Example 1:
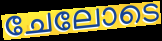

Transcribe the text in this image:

ചേലോടെ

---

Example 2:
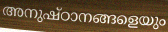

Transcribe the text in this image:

അനുഷ്ഠാനങ്ങളെയും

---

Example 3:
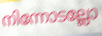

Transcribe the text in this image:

നിന്നോടല്ലോ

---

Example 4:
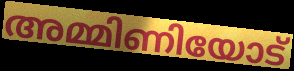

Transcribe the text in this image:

അമ്മിണിയോട്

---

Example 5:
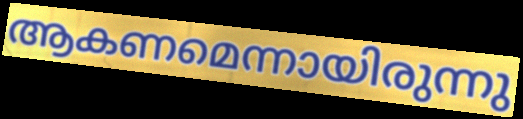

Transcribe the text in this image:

ആകണമെന്നായിരുന്നു